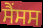
ਸੈਂਸਸ